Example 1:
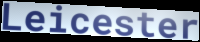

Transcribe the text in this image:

Leicester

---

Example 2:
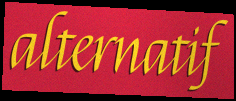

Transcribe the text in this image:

alternatif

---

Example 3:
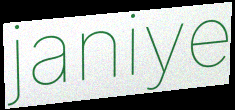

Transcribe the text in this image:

janiye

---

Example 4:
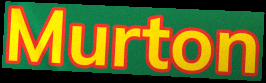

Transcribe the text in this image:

Murton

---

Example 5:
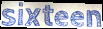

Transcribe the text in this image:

sixteen